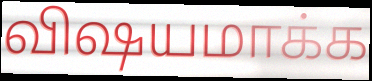
விஷயமாக்க